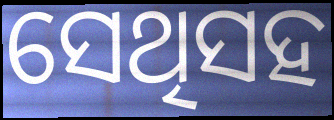
ସେଥିସହ